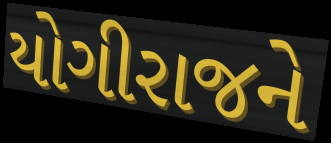
યોગીરાજને